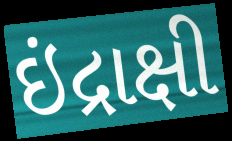
ઇંદ્રાક્ષી